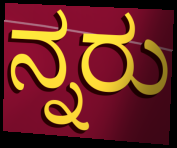
ನ್ನರು